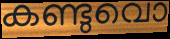
കണ്ടുവൊ